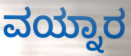
ವಯ್ನಾರ